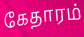
கேதாரம்